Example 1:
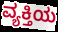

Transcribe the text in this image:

ವ್ಯಕ್ತಿಯ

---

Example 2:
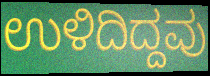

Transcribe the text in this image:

ಉಳಿದಿದ್ದವು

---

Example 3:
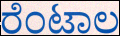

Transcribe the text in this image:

ರೆಂಟಾಲ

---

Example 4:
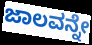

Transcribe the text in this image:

ಜಾಲವನ್ನೇ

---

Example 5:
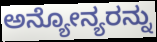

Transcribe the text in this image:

ಅನ್ಯೋನ್ಯರನ್ನು